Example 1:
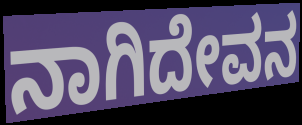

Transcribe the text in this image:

ನಾಗಿದೇವನ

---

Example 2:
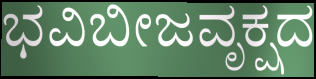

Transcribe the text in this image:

ಭವಿಬೀಜವೃಕ್ಷದ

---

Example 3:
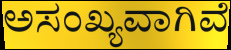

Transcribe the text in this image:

ಅಸಂಖ್ಯವಾಗಿವೆ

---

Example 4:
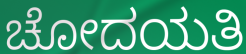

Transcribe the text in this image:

ಚೋದಯತಿ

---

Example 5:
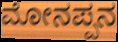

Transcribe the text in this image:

ಮೋನಪ್ಪನ